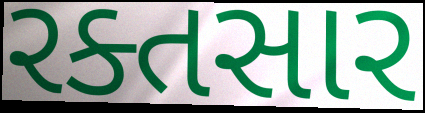
રક્તસાર